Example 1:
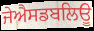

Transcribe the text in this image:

ਜੇਐਸਡਬਲਿਊ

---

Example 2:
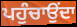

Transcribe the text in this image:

ਪਹੁੰਚਾਉਂਦਾ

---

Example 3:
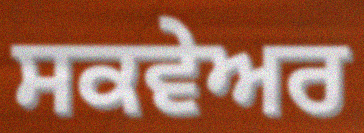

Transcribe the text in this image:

ਸਕਵੇਅਰ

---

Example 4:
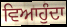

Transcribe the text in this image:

ਵਿਆਹੁੰਦਾ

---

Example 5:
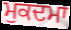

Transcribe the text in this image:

ਮੁਕਦਮਾ